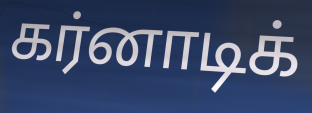
கர்னாடிக்